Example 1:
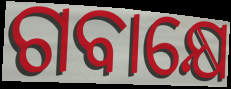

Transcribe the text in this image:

ଗବାକ୍ଷେ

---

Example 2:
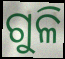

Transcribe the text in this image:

ଗୁଳି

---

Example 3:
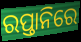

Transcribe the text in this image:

ରପ୍ତାନିରେ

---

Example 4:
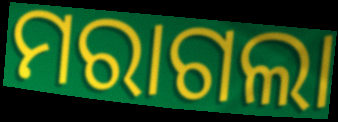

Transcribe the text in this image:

ମରାଗଲା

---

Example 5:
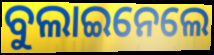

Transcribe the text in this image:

ବୁଲାଇନେଲେ